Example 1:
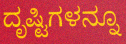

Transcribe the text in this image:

ದೃಷ್ಟಿಗಳನ್ನೂ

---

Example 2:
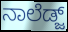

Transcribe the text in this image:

ನಾಲೆಡ್ಜ್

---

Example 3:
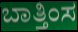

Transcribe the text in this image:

ಬಾತ್ತಿಂಸ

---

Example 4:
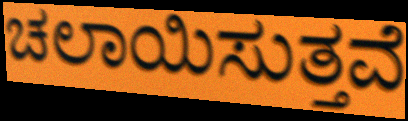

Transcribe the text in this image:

ಚಲಾಯಿಸುತ್ತವೆ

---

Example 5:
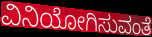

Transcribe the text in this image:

ವಿನಿಯೋಗಿಸುವಂತೆ